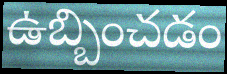
ఉబ్బించడం